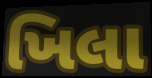
ખિલા